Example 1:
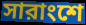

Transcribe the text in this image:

সারাংশে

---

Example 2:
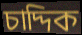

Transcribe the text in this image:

চাদ্দিক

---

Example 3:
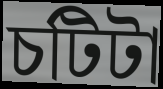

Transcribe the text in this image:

চটিটা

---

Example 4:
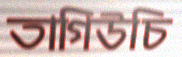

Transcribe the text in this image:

তাগিউচি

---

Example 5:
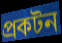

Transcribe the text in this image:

প্রকটন